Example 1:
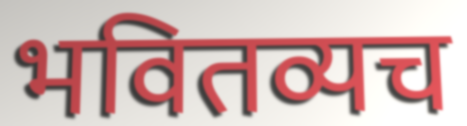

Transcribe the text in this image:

भवितव्यच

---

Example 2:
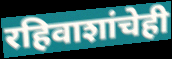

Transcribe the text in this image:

रहिवाशांचेही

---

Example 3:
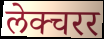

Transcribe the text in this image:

लेक्चरर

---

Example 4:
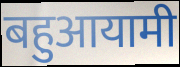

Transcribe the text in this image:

बहुआयामी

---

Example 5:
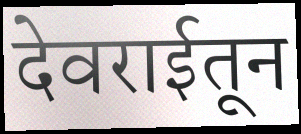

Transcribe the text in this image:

देवराईतून